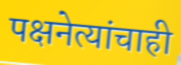
पक्षनेत्यांचाही